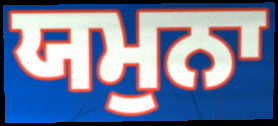
ਯਮੁਨਾ